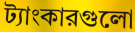
ট্যাংকারগুলো